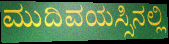
ಮುದಿವಯಸ್ಸಿನಲ್ಲಿ